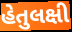
હેતુલક્ષી